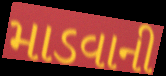
માડવાની